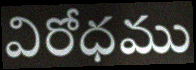
విరోధము